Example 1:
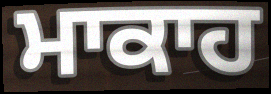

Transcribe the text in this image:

ਮਾਕਾਹ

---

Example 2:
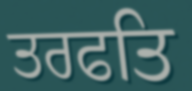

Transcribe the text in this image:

ਤਰਫਤਿ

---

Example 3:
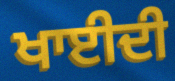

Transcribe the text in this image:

ਖਾਈਦੀ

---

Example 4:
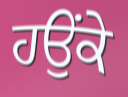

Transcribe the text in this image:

ਹਉਂਕੇ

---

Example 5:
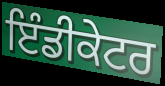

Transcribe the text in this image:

ਇੰਡੀਕੇਟਰ